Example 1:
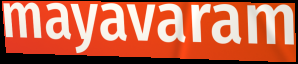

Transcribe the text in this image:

mayavaram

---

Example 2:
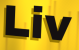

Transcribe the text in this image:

Liv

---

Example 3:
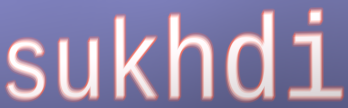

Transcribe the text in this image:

sukhdi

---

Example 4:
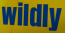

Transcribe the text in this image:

wildly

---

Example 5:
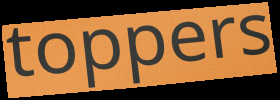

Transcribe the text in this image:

toppers